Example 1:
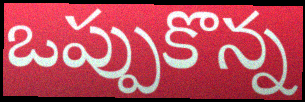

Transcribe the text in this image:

ఒప్పుకొన్న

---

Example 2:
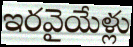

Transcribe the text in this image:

ఇరవైయేళ్లు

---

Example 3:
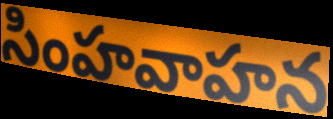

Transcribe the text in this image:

సింహవాహన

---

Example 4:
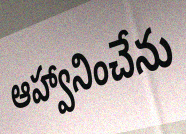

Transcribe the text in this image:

ఆహ్వానించేను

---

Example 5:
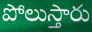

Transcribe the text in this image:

పోలుస్తారు